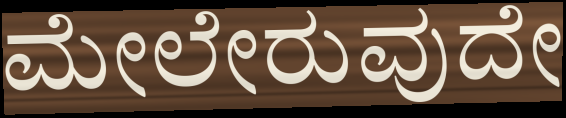
ಮೇಲೇರುವುದೇ